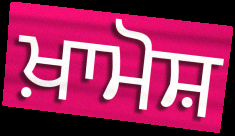
ਖ਼ਾਮੋਸ਼